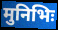
मुनिभिः